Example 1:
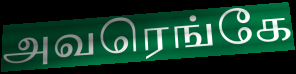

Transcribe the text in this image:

அவரெங்கே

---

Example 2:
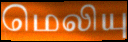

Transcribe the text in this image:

மெலியு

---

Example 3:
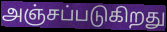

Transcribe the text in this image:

அஞ்சப்படுகிறது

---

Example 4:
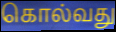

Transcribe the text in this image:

கொல்வது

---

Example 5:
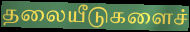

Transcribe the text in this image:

தலையீடுகளைச்